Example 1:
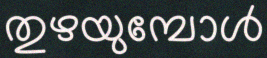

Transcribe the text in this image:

തുഴയുമ്പോൾ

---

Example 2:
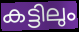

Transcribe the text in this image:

കട്ടിലും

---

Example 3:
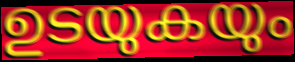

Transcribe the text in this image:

ഉടയുകയും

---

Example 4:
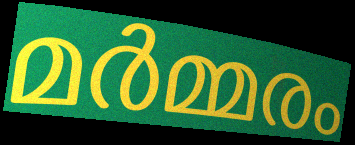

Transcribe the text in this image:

മർമ്മരം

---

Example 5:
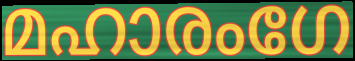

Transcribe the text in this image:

മഹാരംഗേ